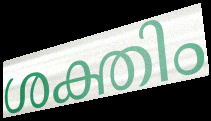
ശക്തിം